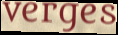
verges